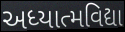
અધ્યાત્મવિદ્યા